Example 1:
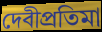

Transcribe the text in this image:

দেবীপ্রতিমা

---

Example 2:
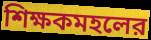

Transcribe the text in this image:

শিক্ষকমহলের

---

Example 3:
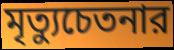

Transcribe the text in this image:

মৃত্যুচেতনার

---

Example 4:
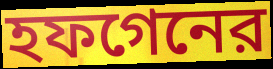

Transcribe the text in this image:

হফগেনের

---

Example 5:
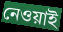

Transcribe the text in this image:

নেওয়াই